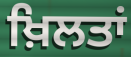
ਖ਼ਿਲਤਾਂ